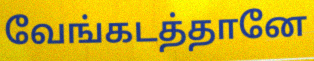
வேங்கடத்தானே